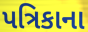
પત્રિકાના